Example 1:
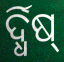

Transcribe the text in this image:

ର୍ଦ୍ଧିଷ୍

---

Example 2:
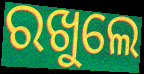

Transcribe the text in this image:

ରଖୁଲେ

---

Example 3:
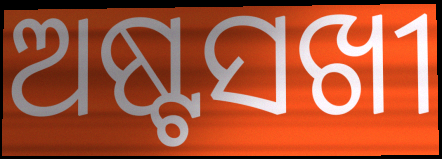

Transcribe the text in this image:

ଅଷ୍ଟସଖୀ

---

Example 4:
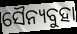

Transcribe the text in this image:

ସୈନ୍ୟବୁହା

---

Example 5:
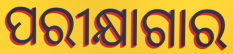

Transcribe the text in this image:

ପରୀକ୍ଷାଗାର